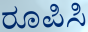
ರೂಪಿಸಿ